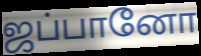
ஜப்பானோ